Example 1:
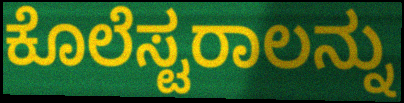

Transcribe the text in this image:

ಕೊಲೆಸ್ಟರಾಲನ್ನು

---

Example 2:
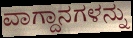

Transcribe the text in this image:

ವಾಗ್ದಾನಗಳನ್ನು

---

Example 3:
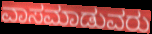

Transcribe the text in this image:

ವಾಸಮಾಡುವರು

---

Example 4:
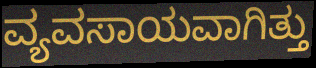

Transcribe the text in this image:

ವ್ಯವಸಾಯವಾಗಿತ್ತು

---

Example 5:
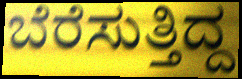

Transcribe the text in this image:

ಬೆರೆಸುತ್ತಿದ್ದ